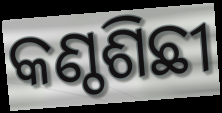
କଣ୍ଠଶିଛୀ